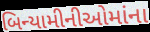
બિન્યામીનીઓમાંના